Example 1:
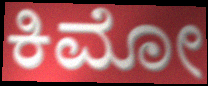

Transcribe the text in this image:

ಕಿಮೋ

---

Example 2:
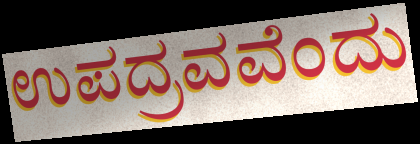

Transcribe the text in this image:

ಉಪದ್ರವವೆಂದು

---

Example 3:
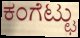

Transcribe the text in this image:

ಕಂಗೆಟ್ಟು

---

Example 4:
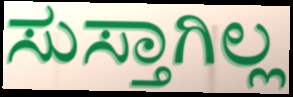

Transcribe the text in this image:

ಸುಸ್ತಾಗಿಲ್ಲ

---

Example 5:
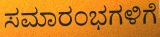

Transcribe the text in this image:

ಸಮಾರಂಭಗಳಿಗೆ